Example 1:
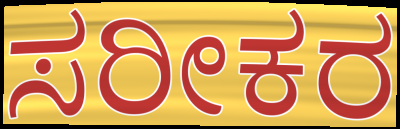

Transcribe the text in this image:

ಸರೀಕರ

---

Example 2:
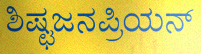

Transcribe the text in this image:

ಶಿಷ್ಟಜನಪ್ರಿಯನ್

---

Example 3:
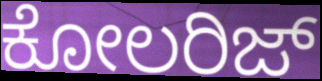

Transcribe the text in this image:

ಕೋಲರಿಜ್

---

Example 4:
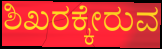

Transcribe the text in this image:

ಶಿಖರಕ್ಕೇರುವ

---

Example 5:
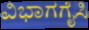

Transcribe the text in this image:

ವಿಭಾಗಗೈಸಿ